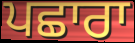
ਪਛਾਰਾ